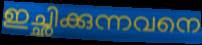
ഇച്ഛിക്കുന്നവനെ